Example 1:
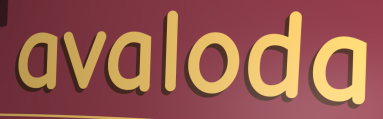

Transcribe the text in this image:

avaloda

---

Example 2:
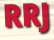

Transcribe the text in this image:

RRJ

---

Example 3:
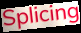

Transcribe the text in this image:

Splicing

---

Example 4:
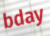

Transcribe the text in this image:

bday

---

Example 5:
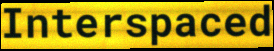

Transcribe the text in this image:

Interspaced